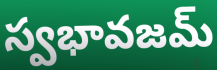
స్వభావజమ్